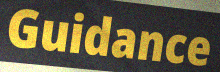
Guidance